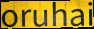
oruhai